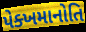
પેક્ખમાનોતિ